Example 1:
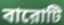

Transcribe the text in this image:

বারোটি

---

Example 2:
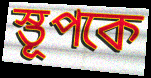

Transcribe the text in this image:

স্তূপকে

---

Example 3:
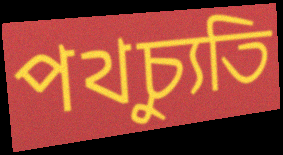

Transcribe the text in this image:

পথচ্যুতি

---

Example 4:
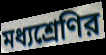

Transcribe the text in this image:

মধ্যশ্রেণির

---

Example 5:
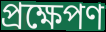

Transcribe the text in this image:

প্রক্ষেপণ